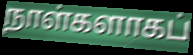
நாள்களாகப்